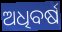
ଅଧିବର୍ଷ